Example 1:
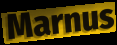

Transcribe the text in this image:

Marnus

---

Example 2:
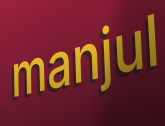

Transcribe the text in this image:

manjul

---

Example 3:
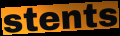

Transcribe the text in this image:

stents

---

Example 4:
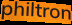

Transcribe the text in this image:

philtron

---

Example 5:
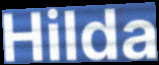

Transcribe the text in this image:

Hilda